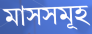
মাসসমূহ